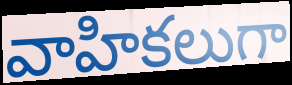
వాహికలుగా